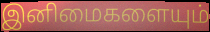
இனிமைகளையும்